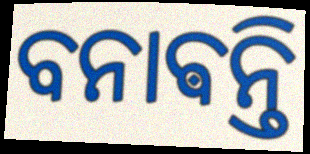
ବନାଵନ୍ତି